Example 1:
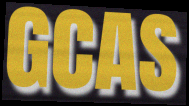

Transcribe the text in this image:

GCAS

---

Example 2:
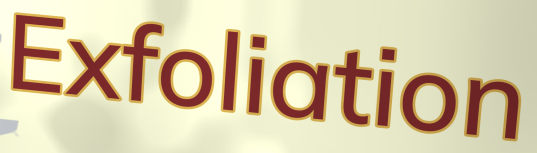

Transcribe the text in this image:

Exfoliation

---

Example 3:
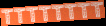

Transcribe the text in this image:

TTTTTTTT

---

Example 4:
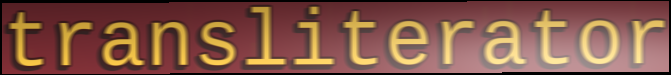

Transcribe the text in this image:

transliterator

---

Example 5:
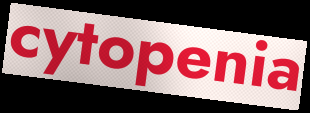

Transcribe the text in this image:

cytopenia